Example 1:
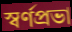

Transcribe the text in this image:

স্বর্ণপ্রভা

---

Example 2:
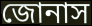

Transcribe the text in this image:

জোনাস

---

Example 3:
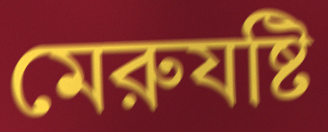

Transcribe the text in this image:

মেরুযষ্টি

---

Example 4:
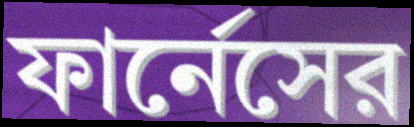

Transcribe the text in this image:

ফার্নেসের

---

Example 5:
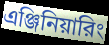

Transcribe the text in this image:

এঞ্জিনিয়ারিং